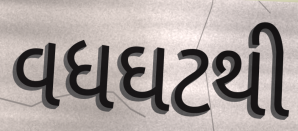
વધઘટથી